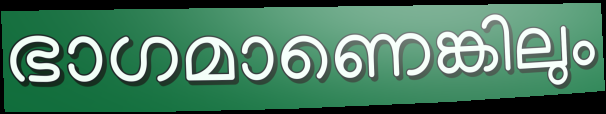
ഭാഗമാണെങ്കിലും